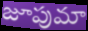
జూపుమా